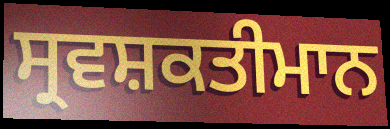
ਸ੍ਰਵਸ਼ਕਤੀਮਾਨ